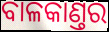
ବାଳକାଣ୍ତର